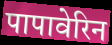
पापावेरिन